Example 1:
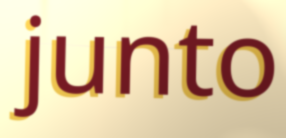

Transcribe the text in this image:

junto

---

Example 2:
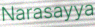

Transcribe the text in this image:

Narasayya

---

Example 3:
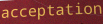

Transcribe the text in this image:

acceptation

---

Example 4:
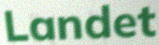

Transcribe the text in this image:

Landet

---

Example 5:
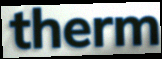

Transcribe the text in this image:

therm